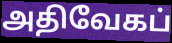
அதிவேகப்